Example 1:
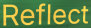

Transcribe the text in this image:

Reflect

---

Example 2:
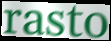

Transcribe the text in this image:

rasto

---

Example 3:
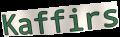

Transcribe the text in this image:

Kaffirs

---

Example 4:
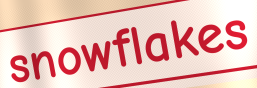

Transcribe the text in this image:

snowflakes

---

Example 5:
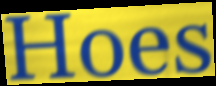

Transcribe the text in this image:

Hoes